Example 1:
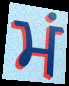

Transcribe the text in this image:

ਮਂ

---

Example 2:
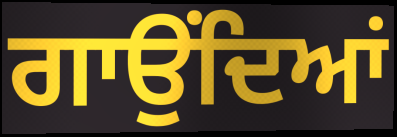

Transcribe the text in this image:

ਗਾਉਂਦਿਆਂ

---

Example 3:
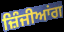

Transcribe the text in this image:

ਜ਼ਿੰਜੀਆਂਗ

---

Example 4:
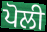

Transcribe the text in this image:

ਪੋਲੀ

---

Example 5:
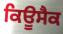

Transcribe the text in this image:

ਕਿਊਸੈਕ